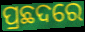
ପ୍ରଛଦରେ